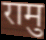
रामु